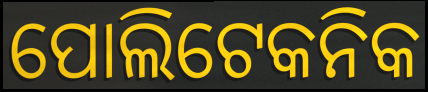
ପୋଲିଟେକନିକ